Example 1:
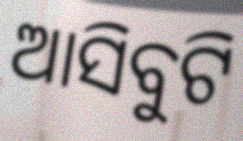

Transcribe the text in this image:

ଆସିବୁଟି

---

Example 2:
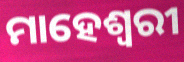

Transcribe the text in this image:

ମାହେଶ୍ଵରୀ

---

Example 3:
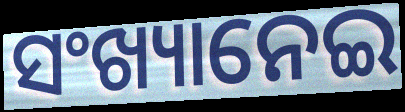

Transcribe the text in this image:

ସଂଖ୍ୟାନେଇ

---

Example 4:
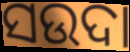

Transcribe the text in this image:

ସଉଦା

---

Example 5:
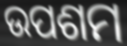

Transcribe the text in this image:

ଉପଶମ